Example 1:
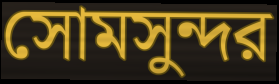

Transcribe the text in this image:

সোমসুন্দর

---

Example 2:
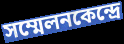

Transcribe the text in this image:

সম্মেলনকেন্দ্রে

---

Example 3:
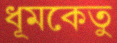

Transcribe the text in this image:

ধূমকেতু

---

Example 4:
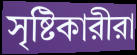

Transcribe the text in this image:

সৃষ্টিকারীরা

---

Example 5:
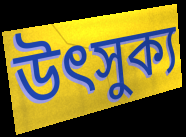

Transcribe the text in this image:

উৎসুক্য